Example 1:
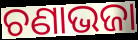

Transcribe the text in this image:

ଚଣାଭଜା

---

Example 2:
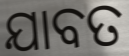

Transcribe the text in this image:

ଯାବତ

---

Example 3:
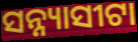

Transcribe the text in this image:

ସନ୍ନ୍ୟାସୀଟା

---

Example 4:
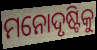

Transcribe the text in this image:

ମନୋଦୃଷ୍ଟିକୁ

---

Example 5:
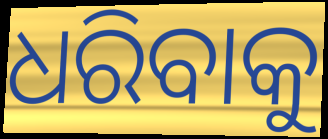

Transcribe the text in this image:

ଧରିବାକୁ